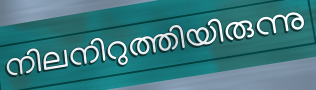
നിലനിറുത്തിയിരുന്നു